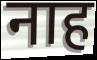
नाह